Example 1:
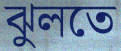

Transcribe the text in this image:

ঝুলতে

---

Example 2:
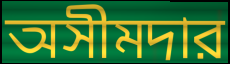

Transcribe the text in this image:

অসীমদার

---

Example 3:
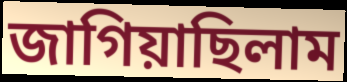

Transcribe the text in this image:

জাগিয়াছিলাম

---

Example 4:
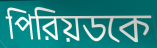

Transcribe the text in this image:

পিরিয়ডকে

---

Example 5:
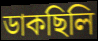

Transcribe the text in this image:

ডাকছিলি